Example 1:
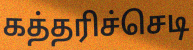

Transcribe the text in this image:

கத்தரிச்செடி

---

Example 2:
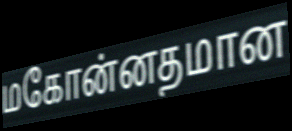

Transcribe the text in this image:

மகோன்னதமான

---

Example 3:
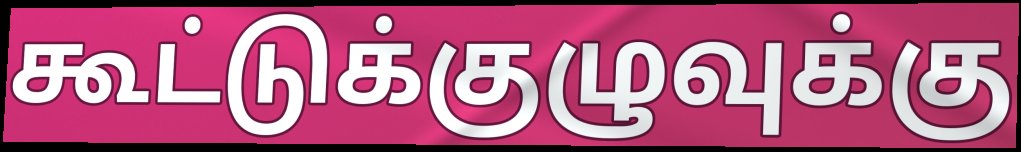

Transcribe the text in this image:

கூட்டுக்குழுவுக்கு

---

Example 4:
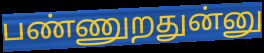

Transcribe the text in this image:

பண்ணுறதுன்னு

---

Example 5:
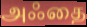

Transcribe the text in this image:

அஃதை